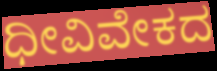
ಧೀವಿವೇಕದ